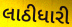
લાઠીધારી